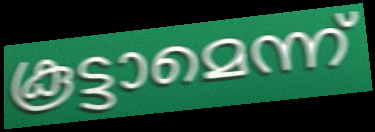
കൂട്ടാമെന്ന്